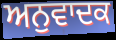
ਅਨੁਵਾਦਕ